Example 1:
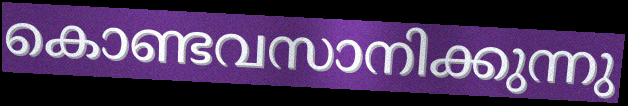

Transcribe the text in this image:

കൊണ്ടവസാനിക്കുന്നു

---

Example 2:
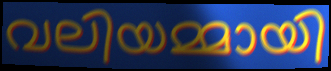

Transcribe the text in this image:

വലിയമ്മായി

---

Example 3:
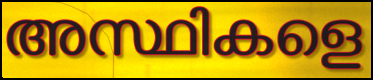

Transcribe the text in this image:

അസ്ഥികളെ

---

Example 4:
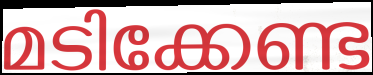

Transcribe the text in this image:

മടിക്കേണ്ട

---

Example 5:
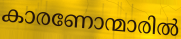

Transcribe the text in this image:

കാരണോന്മാരിൽ